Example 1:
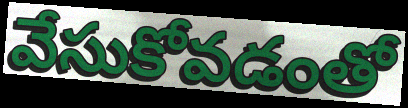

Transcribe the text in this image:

వేసుకోవడంతో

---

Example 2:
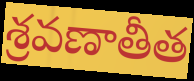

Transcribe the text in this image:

శ్రవణాతీత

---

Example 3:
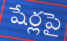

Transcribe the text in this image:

షేర్లపై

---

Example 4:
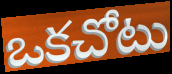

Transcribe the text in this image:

ఒకచోటు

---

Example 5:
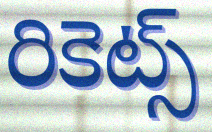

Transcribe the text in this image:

రికెట్స్